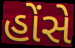
હોંસે